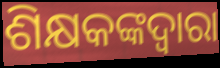
ଶିକ୍ଷକଙ୍କଦ୍ଵାରା